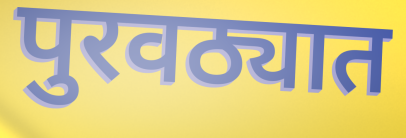
पुरवठ्यात